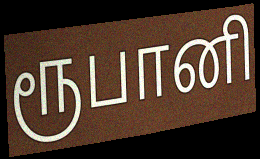
ரூபானி